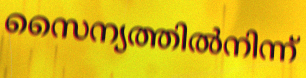
സൈന്യത്തിൽനിന്ന്